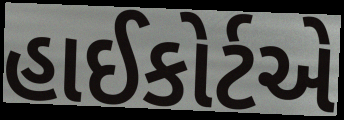
હાઈકોર્ટએ